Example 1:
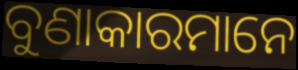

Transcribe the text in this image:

ବୁଣାକାରମାନେ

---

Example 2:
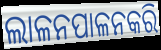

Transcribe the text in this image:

ଲାଳନପାଳନକରି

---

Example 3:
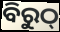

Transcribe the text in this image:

ବିରୁଠ୍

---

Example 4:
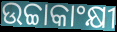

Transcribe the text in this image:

ଉଚ୍ଚାକାଂକ୍ଷୀ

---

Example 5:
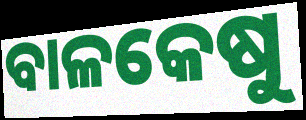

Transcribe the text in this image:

ବାଳକେଷୁ